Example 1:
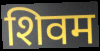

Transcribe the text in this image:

शिवम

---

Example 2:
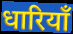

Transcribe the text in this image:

धारियाँ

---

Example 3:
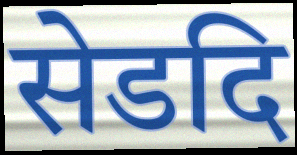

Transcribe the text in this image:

सेडदि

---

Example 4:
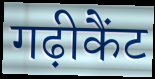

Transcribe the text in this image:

गढ़ीकैंट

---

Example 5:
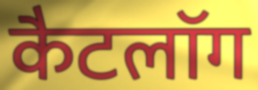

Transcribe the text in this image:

कैटलॉग